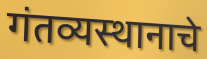
गंतव्यस्थानाचे